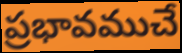
ప్రభావముచే